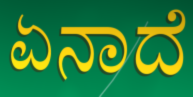
ಏನಾದೆ